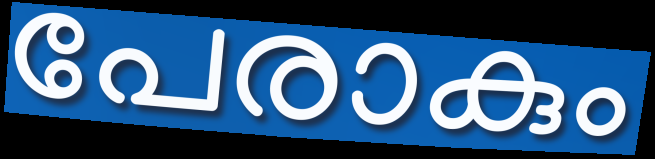
പേരാകും